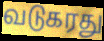
வடுகரது